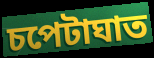
চপেটাঘাত